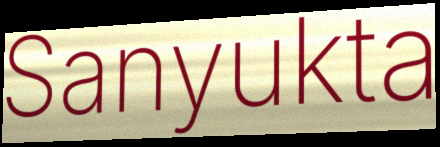
Sanyukta